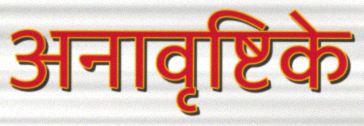
अनावृष्टिके